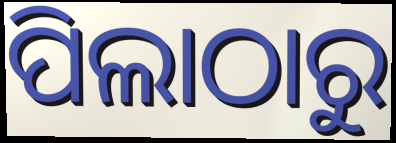
ପିଲାଠାରୁ